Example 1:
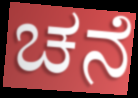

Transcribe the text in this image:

ಚನೆ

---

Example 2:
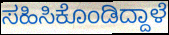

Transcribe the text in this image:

ಸಹಿಸಿಕೊಂಡಿದ್ದಾಳೆ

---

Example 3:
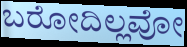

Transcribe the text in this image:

ಬರೋದಿಲ್ಲವೋ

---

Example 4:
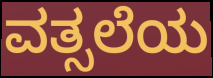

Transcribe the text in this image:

ವತ್ಸಲೆಯ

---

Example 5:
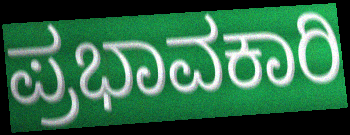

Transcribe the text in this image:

ಪ್ರಭಾವಕಾರಿ